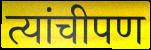
त्यांचीपण